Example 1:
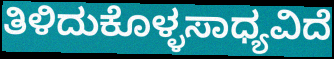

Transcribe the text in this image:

ತಿಳಿದುಕೊಳ್ಳಸಾಧ್ಯವಿದೆ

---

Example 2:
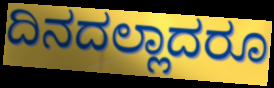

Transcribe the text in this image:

ದಿನದಲ್ಲಾದರೂ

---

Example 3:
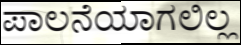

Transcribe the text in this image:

ಪಾಲನೆಯಾಗಲಿಲ್ಲ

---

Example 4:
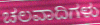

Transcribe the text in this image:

ಚಲವಾದಿಗಳು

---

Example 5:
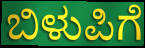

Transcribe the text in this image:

ಬಿಳುಪಿಗೆ